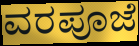
ವರಪೂಜೆ